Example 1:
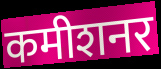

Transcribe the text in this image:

कमीशनर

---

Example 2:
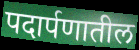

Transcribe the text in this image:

पदार्पणातील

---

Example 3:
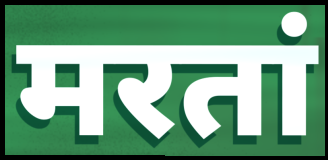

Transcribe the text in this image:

मरतां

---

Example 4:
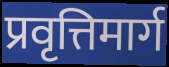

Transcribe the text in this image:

प्रवृत्तिमार्ग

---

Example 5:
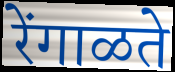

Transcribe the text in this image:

रेंगाळते